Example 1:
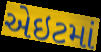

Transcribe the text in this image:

એઇટમાં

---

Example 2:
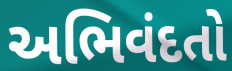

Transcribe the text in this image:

અભિવંદતો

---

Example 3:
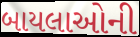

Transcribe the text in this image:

બાયલાઓની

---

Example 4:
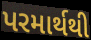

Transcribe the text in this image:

પરમાર્થથી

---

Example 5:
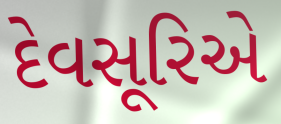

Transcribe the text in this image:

દેવસૂરિએ